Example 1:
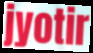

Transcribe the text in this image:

jyotir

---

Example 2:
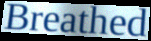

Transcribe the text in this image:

Breathed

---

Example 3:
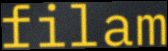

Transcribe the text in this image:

filam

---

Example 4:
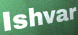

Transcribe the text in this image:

Ishvar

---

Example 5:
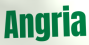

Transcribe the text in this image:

Angria